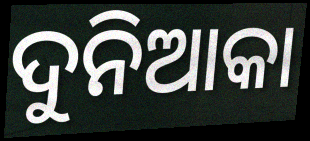
ଦୁନିଆକା